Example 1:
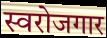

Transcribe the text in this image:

स्‍वरोजगार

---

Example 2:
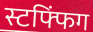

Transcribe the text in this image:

स्टफ्फिंग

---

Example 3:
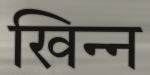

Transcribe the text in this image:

खिन्‍न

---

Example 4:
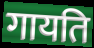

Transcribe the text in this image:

गायति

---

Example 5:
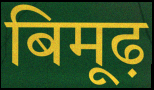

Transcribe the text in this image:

बिमूढ़